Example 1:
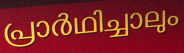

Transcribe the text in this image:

പ്രാർഥിച്ചാലും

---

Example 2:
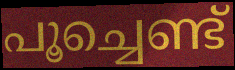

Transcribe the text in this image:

പൂച്ചെണ്ട്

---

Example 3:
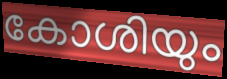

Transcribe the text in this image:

കോശിയും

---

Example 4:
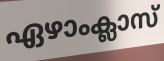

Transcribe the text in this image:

ഏഴാംക്ലാസ്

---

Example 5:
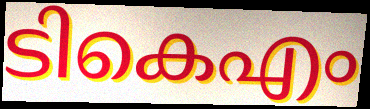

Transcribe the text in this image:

ടികെഎം